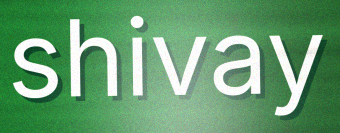
shivay